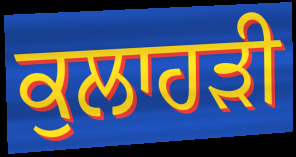
ਕੁਲਾਹੜੀ